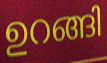
ഉറങ്ങി